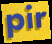
pir